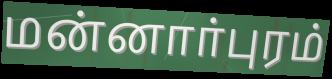
மன்னார்புரம்